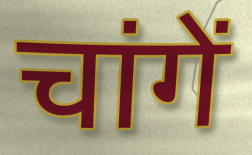
चांगें